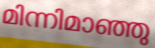
മിന്നിമാഞ്ഞു